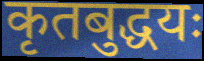
कृतबुद्धयः